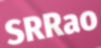
SRRao